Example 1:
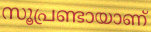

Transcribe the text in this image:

സൂപ്രണ്ടായാണ്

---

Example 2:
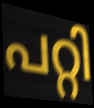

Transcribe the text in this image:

പറ്റി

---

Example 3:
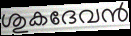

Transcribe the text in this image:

ശുകദേവൻ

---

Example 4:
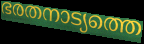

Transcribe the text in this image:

ഭരതനാട്യത്തെ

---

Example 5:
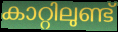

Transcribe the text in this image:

കാറ്റിലുണ്ട്